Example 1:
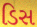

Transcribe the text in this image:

ડિસ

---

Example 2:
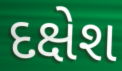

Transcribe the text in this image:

દક્ષેશ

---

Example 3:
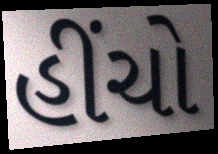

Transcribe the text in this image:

હીંચો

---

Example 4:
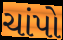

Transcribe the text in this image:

ચાંપો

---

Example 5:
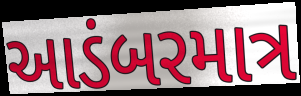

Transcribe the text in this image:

આડંબરમાત્ર